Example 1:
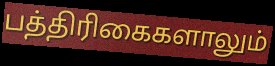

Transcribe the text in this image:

பத்திரிகைகளாலும்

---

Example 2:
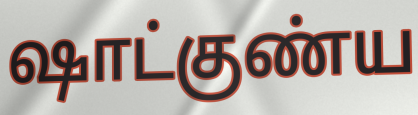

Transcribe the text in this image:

ஷாட்குண்ய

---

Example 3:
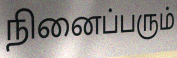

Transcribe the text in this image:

நினைப்பரும்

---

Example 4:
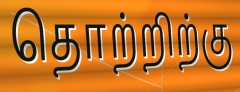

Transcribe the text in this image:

தொற்றிற்கு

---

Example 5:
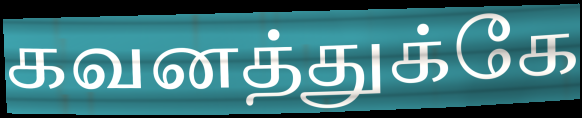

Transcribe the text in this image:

கவனத்துக்கே